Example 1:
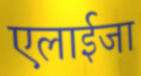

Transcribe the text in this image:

एलाईजा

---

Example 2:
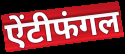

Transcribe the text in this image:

ऐंटीफंगल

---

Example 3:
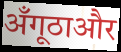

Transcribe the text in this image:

अँगूठाऔर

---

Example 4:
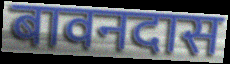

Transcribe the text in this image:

बावनदास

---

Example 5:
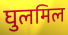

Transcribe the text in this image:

घुलमिल